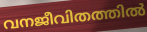
വനജീവിതത്തിൽ